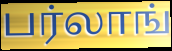
பர்லாங்